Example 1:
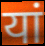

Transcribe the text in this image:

यां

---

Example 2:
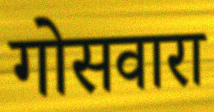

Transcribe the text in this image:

गोसवारा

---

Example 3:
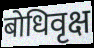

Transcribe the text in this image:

बोधिवृक्ष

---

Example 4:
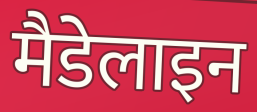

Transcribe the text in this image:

मैडेलाइन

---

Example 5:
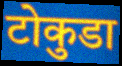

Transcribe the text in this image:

टोकुडा